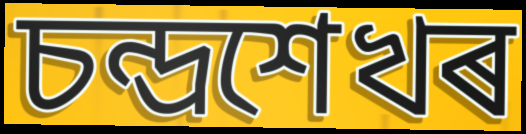
চন্দ্ৰশেখৰ